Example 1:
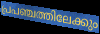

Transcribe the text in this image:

പ്രപഞ്ചത്തിലേക്കും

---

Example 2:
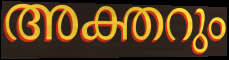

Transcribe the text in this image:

അക്തറും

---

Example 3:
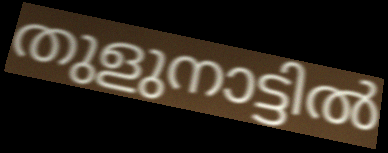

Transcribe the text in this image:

തുളുനാട്ടിൽ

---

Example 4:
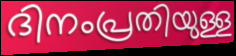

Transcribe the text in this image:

ദിനംപ്രതിയുള്ള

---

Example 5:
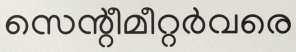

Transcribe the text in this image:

സെന്റീമീറ്റർവരെ